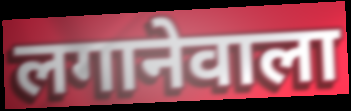
लगानेवाला